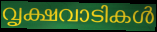
വൃക്ഷവാടികൾ